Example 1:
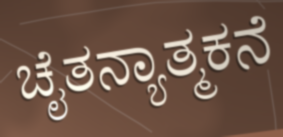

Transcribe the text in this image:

ಚೈತನ್ಯಾತ್ಮಕನೆ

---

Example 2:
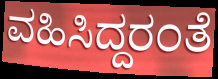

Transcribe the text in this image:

ವಹಿಸಿದ್ದರಂತೆ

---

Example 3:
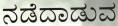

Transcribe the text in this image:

ನಡೆದಾಡುವ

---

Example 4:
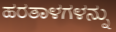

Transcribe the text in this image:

ಹರತಾಳಗಳನ್ನು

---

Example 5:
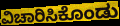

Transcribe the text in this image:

ವಿಚಾರಿಸಿಕೊಂಡು